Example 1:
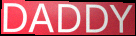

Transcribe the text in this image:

DADDY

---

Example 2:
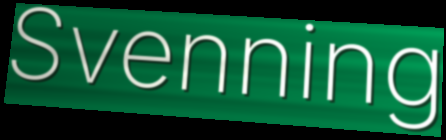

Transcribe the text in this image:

Svenning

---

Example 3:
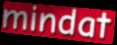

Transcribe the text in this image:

mindat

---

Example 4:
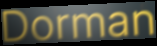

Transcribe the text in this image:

Dorman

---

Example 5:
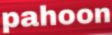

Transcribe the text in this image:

pahoon